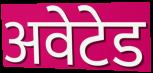
अवेटेड